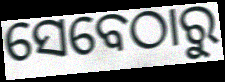
ସେବେଠାରୁ